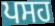
ਪਸਹ